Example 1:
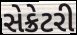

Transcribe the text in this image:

સેક્રેટરી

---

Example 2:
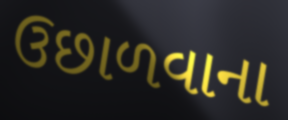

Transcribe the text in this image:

ઉછાળવાના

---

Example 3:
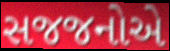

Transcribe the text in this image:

સજજનોએ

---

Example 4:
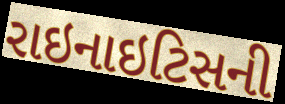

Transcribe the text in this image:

રાઇનાઇટિસની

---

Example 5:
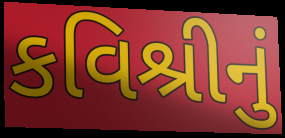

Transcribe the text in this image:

કવિશ્રીનું